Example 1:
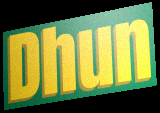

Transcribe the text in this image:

Dhun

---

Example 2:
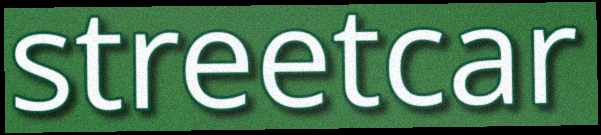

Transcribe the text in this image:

streetcar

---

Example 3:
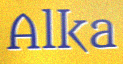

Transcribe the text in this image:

Alka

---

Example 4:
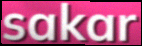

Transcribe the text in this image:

sakar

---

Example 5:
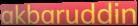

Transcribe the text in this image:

akbaruddin